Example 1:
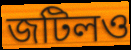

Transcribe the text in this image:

জটিলও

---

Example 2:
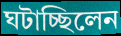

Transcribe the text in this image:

ঘটাচ্ছিলেন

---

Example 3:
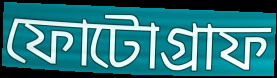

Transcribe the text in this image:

ফোটোগ্রাফ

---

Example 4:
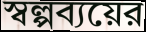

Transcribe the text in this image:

স্বল্পব্যয়ের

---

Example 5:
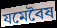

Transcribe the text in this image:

যমেবৈষ